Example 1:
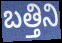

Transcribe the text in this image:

బత్తిని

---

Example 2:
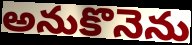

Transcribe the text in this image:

అనుకొనెను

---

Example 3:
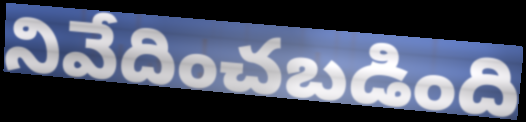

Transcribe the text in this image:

నివేదించబడింది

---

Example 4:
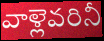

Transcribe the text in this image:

వాళ్లెవరినీ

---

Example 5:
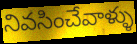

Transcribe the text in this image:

నివసించేవాళ్ళు